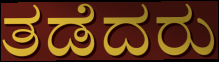
ತಡೆದರು